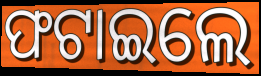
ଫଟାଇଲେ